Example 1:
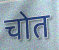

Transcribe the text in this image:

चोत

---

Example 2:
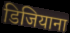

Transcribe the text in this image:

डिजियाना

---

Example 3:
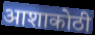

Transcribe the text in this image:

आशाकोठी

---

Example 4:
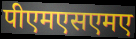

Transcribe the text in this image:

पीएमएसएमए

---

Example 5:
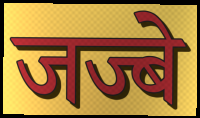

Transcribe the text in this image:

जज्बे